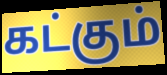
கட்கும்